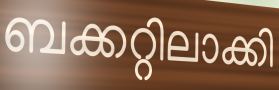
ബക്കറ്റിലാക്കി